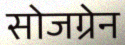
सोजग्रेन